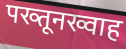
पख्तूनख्वाह